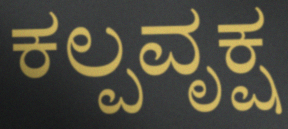
ಕಲ್ಪವೃಕ್ಷ